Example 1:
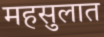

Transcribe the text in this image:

महसुलात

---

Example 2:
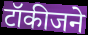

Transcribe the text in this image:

टॉकीजने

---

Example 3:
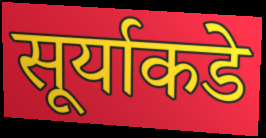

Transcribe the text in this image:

सूर्याकडे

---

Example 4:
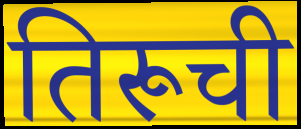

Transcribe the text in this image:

तिरूची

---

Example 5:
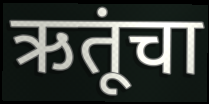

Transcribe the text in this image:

ऋतूंचा